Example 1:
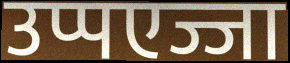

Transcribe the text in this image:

उप्पएज्जा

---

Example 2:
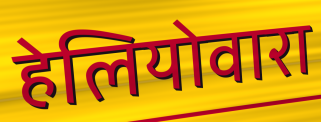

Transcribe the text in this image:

हेलियोवारा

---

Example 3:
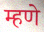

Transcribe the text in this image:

म्हणे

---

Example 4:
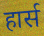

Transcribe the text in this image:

हार्स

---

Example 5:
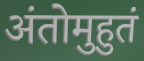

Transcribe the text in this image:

अंतोमुहुतं